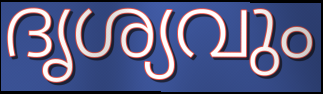
ദൃശ്യവും